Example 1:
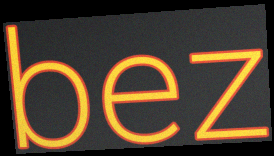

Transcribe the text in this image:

bez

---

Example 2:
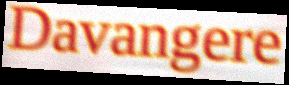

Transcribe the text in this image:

Davangere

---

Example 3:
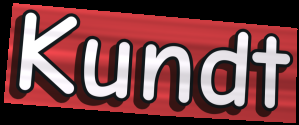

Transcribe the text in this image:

Kundt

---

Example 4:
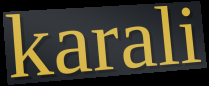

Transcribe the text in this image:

karali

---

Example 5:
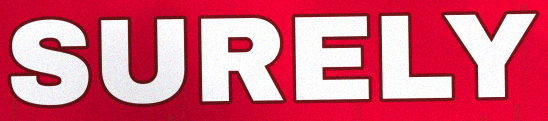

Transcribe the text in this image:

SURELY